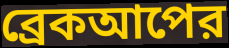
ব্রেকআপের